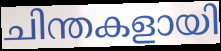
ചിന്തകളായി